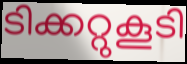
ടിക്കറ്റുകൂടി